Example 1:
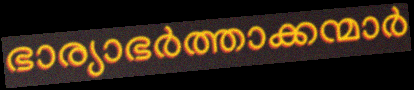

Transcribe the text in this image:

ഭാര്യാഭർത്താക്കന്മാർ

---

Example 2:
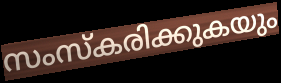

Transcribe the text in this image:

സംസ്കരിക്കുകയും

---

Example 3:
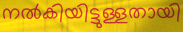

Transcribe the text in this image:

നൽകിയിട്ടുള്ളതായി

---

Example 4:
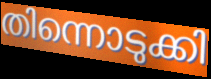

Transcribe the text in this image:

തിന്നൊടുക്കി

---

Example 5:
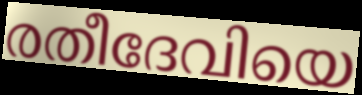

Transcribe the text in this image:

രതീദേവിയെ